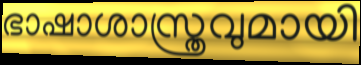
ഭാഷാശാസ്ത്രവുമായി